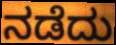
ನಡೆದು